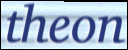
theon